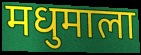
मधुमाला